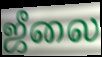
ஜீலை